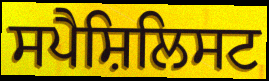
ਸਪੈਸ਼ਿਲਿਸਟ